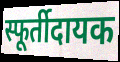
स्फूर्तीदायक